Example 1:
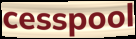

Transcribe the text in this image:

cesspool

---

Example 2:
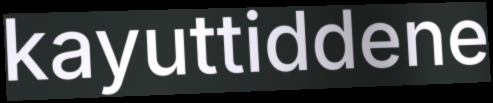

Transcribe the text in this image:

kayuttiddene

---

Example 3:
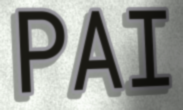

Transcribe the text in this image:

PAI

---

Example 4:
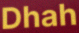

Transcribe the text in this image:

Dhah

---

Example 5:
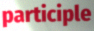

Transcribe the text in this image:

participle